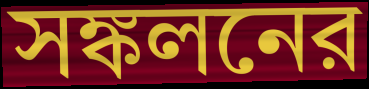
সঙ্কলনের